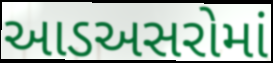
આડઅસરોમાં